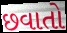
છવાતો